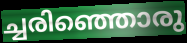
ച്ചരിഞ്ഞൊരു